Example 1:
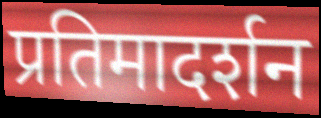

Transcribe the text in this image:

प्रतिमादर्शन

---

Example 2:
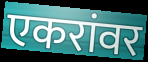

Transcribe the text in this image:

एकरांवर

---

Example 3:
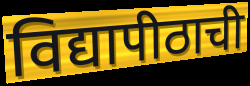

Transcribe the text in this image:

विद्यापीठाची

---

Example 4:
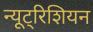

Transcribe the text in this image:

न्यूट्रिशियन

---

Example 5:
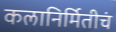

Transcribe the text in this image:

कलानिर्मितीचं